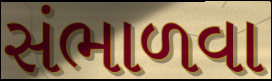
સંભાળવા